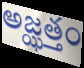
అజ్ఝత్తం